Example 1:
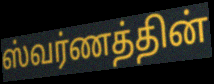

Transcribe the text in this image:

ஸ்வர்ணத்தின்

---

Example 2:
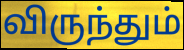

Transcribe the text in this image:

விருந்தும்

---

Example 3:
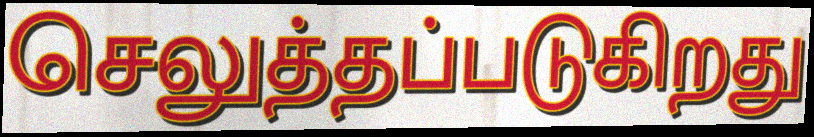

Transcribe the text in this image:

செலுத்தப்படுகிறது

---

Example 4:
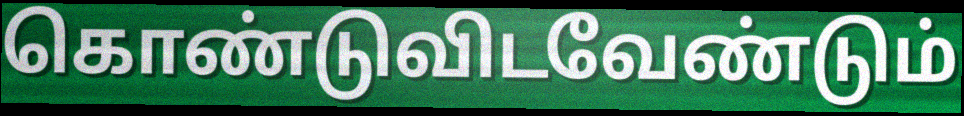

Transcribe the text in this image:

கொண்டுவிடவேண்டும்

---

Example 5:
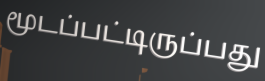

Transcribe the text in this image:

மூடப்பட்டிருப்பது